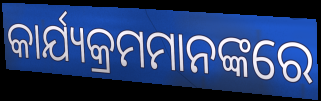
କାର୍ଯ୍ୟକ୍ରମମାନଙ୍କରେ